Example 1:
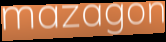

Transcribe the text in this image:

mazagon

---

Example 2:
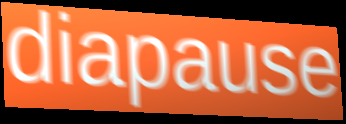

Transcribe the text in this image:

diapause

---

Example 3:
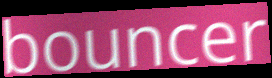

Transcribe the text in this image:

bouncer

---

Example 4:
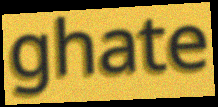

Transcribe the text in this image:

ghate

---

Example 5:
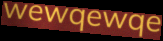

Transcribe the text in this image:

wewqewqe